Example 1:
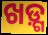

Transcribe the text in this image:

ଖଡ଼୍ଗ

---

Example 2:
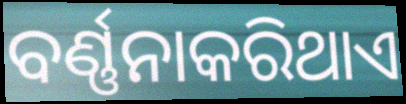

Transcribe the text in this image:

ବର୍ଣ୍ଣନାକରିଥାଏ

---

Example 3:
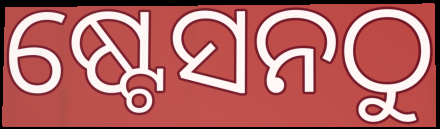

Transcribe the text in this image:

ଷ୍ଟେସନଠୁ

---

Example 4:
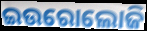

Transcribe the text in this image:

ଇଉରୋଲୋଜି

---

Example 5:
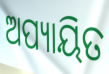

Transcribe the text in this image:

ଅପ୍ୟାୟିତ